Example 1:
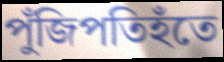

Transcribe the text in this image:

পুঁজিপতিহঁতে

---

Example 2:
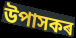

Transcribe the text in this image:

উপাসকৰ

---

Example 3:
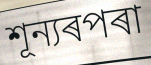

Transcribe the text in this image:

শূন্যৰপৰা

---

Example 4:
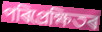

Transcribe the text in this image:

পৰিপ্ৰেক্ষিতৰ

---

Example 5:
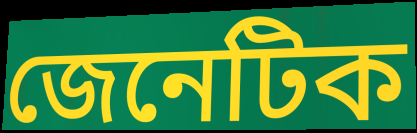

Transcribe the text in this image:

জেনেটিক